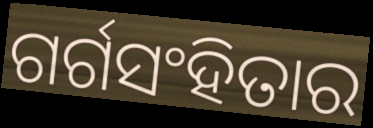
ଗର୍ଗସଂହିତାର